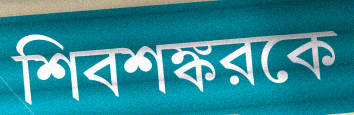
শিবশঙ্করকে